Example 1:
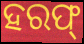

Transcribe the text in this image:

ହରଫ୍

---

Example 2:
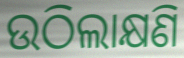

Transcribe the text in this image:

ଉଠିଲାକ୍ଷଣି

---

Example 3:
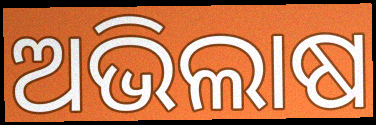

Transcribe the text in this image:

ଅଭିଲାଷ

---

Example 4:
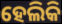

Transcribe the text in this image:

ହେଲିକି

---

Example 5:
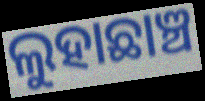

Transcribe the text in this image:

ଲୁହାଛାଞ୍ଚ